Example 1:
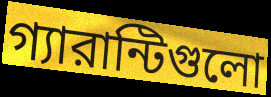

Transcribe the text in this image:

গ্যারান্টিগুলো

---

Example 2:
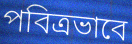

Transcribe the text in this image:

পবিত্রভাবে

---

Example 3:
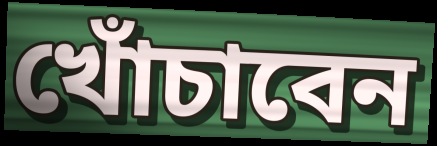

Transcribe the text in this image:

খোঁচাবেন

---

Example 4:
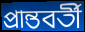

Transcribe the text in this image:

প্রান্তবর্তী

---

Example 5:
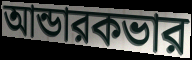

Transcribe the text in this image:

আন্ডারকভার